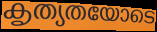
കൃത്യതയോടെ